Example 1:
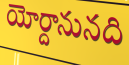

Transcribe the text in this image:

యోర్దానునది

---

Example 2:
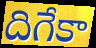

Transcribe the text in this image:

దిగేకా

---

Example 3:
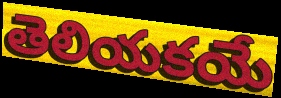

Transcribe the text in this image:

తెలియకయే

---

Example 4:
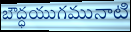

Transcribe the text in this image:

బౌద్ధయుగమునాటి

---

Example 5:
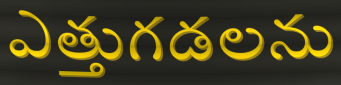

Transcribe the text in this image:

ఎత్తుగడలను